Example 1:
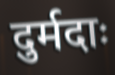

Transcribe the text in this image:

दुर्मदाः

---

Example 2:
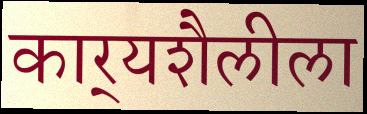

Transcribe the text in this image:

कार्यशैलीला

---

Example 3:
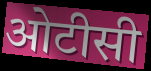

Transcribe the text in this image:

ओटीसी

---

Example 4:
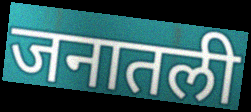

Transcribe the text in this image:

जनातली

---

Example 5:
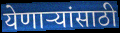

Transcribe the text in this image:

येणाऱ्यांसाठी